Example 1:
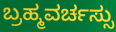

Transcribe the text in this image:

ಬ್ರಹ್ಮವರ್ಚಸ್ಸು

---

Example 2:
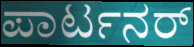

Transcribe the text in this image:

ಪಾರ್ಟನರ್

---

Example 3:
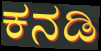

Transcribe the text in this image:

ಕನಡಿ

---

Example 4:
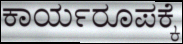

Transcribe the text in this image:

ಕಾರ್ಯರೂಪಕ್ಕೆ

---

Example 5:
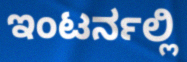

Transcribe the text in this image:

ಇಂಟರ್ನಲ್ಲಿ